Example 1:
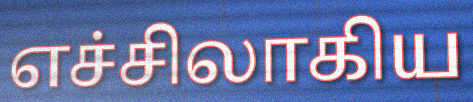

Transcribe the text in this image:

எச்சிலாகிய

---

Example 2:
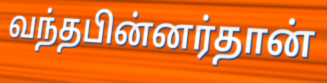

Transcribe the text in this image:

வந்தபின்னர்தான்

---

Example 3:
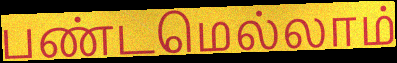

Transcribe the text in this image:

பண்டமெல்லாம்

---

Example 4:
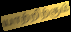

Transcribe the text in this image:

யாற்றிற்கும்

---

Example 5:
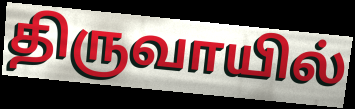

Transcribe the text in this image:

திருவாயில்